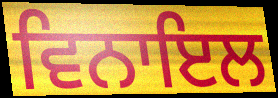
ਵਿਨਾਇਲ